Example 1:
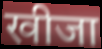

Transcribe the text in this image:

खीजा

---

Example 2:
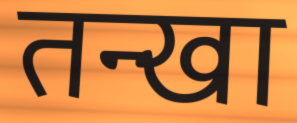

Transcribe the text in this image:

तन्खा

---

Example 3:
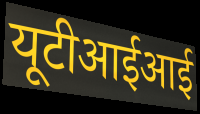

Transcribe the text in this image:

यूटीआईआई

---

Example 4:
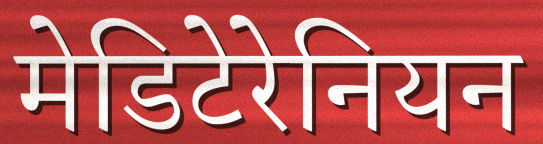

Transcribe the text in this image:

मेडिटेरेनियन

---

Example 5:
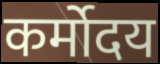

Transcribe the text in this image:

कर्मोदय